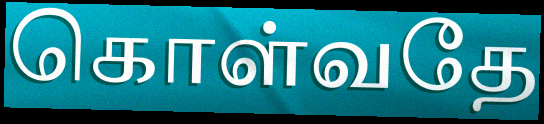
கொள்வதே